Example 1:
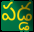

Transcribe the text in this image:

పడ్డ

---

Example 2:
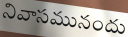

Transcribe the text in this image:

నివాసమునందు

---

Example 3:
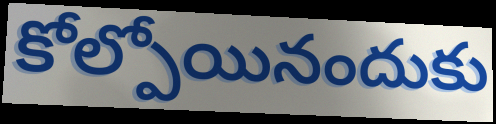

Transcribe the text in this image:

కోల్పోయినందుకు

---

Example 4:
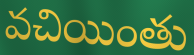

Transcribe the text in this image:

వచియింతు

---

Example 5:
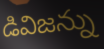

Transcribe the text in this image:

డివిజన్ను